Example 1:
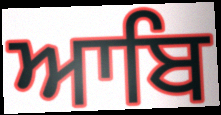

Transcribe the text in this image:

ਆਬਿ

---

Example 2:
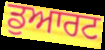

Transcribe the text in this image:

ਡੁਆਰਟ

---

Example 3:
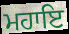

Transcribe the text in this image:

ਮਹਾਇ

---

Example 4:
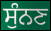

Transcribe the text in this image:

ਸੁੰਨਣ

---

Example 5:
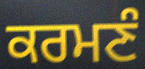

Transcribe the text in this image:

ਕਰਮਣੰ